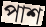
পাশ